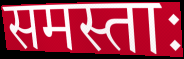
समस्ताः